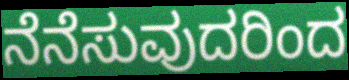
ನೆನೆಸುವುದರಿಂದ